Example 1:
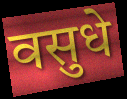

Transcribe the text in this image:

वसुधे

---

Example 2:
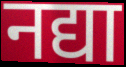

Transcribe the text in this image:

नद्या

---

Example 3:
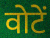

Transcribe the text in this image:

वोटें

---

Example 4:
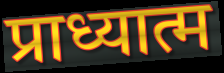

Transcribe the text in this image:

प्राध्यात्म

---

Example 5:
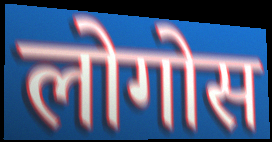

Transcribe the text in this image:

लोगोस